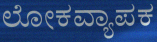
ಲೋಕವ್ಯಾಪಕ